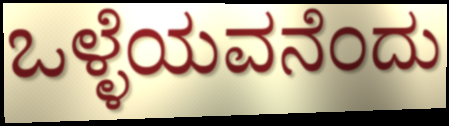
ಒಳ್ಳೆಯವನೆಂದು